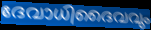
ദേവാധിദൈവവും